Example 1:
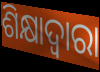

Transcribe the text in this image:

ଶିକ୍ଷାଦ୍ୱାରା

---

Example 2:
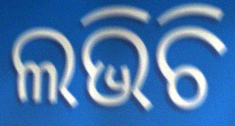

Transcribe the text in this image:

ଲଭିଚି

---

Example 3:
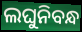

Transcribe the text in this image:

ଲଘୁନିବନ୍ଧ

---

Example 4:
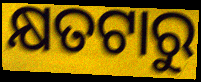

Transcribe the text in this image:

କ୍ଷତଟାରୁ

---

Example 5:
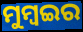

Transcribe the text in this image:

ମୁମ୍ବଇର